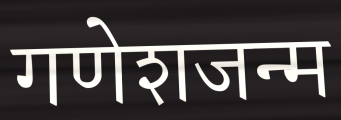
गणेशजन्म